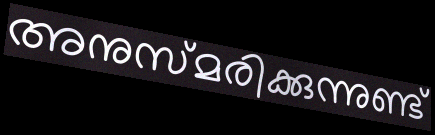
അനുസ്മരിക്കുന്നുണ്ട്